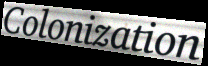
Colonization